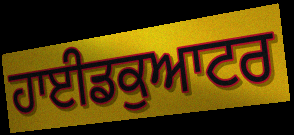
ਹਾਈਡਕੁਆਟਰ